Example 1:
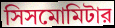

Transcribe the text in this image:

সিসমোমিটার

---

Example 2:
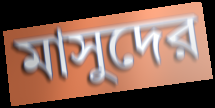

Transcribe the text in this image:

মাসুদের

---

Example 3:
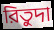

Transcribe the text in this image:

রিতুদা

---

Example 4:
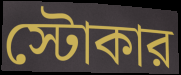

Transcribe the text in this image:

স্টোকার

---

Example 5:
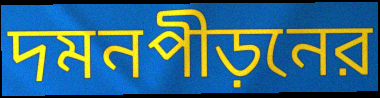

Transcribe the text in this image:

দমনপীড়নের